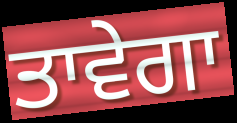
ਤਾਵੇਗਾ